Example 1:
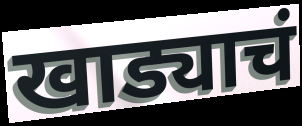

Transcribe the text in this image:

खाड्याचं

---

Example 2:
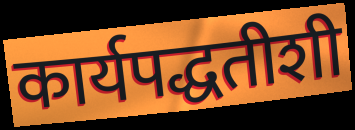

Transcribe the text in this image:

कार्यपद्धतीशी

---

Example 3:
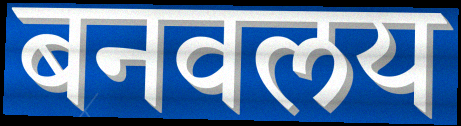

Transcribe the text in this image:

बनवलय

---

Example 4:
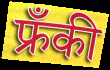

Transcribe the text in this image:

फ्रँकी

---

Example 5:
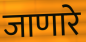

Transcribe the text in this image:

जाणारे